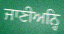
ਜਾਣੀਅਨ੍ਹਿ